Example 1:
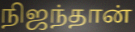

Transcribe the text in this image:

நிஜந்தான்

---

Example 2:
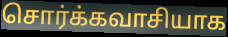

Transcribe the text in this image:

சொர்க்கவாசியாக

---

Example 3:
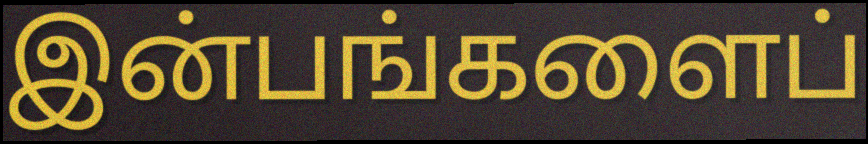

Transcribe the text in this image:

இன்பங்களைப்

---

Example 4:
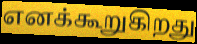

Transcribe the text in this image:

எனக்கூறுகிறது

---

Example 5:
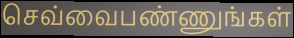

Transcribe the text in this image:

செவ்வைபண்ணுங்கள்